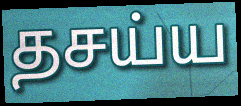
தசய்ய